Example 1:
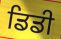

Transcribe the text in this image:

ਡਿਡੀ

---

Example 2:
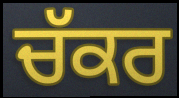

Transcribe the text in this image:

ਚੱਕਰ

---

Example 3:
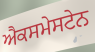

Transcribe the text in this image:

ਐਕਸਮੇਸਟੇਨ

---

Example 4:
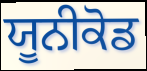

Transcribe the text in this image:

ਯੂਨੀਕੋਡ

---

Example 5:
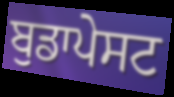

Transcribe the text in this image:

ਬੁਡਾਪੇਸਟ